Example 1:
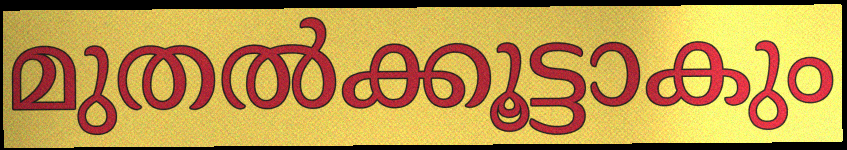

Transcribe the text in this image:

മുതൽക്കൂട്ടാകും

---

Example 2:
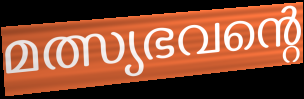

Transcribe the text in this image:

മത്സ്യഭവന്റെ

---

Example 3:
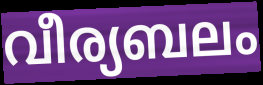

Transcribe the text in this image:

വീര്യബലം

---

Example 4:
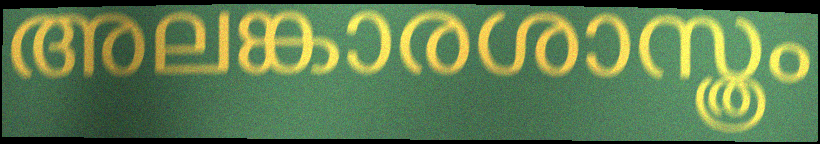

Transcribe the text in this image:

അലങ്കാരശാസ്ത്രം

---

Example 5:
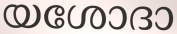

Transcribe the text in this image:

യശോദാ